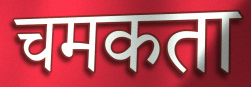
चमकता